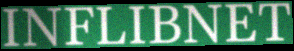
INFLIBNET